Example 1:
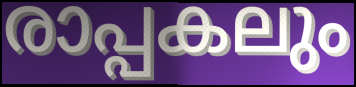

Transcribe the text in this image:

രാപ്പകലും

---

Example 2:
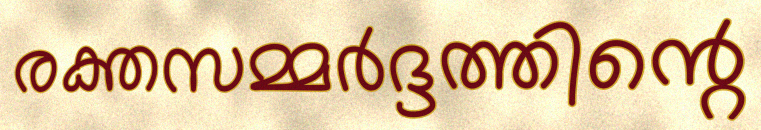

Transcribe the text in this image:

രക്തസമ്മർദ്ദത്തിന്റെ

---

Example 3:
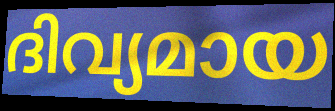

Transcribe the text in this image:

ദിവ്യമായ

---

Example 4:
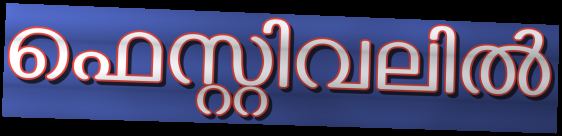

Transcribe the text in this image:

ഫെസ്റ്റിവലിൽ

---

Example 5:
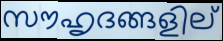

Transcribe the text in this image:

സൗഹൃദങ്ങളില്